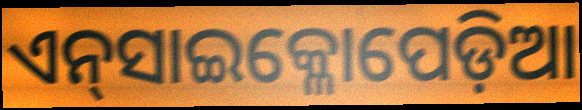
ଏନ୍‌ସାଇକ୍ଳୋପେଡ଼ିଆ